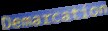
Demarcation